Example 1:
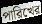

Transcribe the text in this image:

পারিখের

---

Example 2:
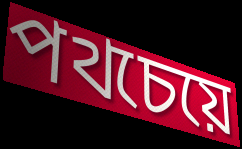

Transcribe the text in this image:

পথচেয়ে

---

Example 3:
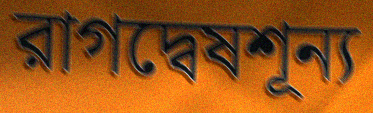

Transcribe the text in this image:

রাগদ্বেষশূন্য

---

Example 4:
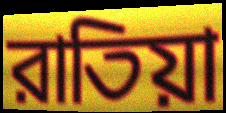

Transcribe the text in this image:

রাতিয়া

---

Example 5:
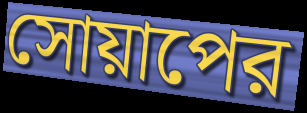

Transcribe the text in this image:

সোয়াপের